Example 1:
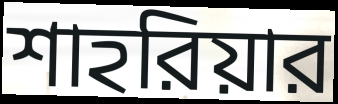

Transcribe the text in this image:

শাহরিয়ার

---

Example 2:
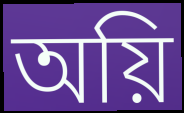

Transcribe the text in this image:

অয়ি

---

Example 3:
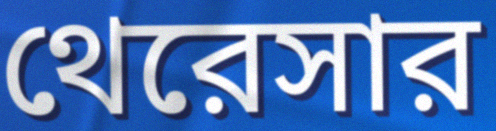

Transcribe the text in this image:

থেরেসার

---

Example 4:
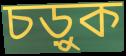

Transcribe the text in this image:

চড়ুক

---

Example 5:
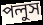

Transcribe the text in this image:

পলুস